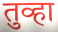
तुव्हा